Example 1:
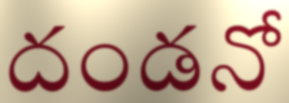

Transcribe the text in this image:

దండనో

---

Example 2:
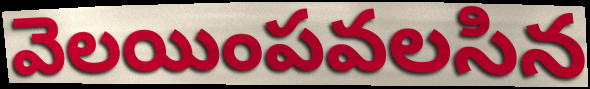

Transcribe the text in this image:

వెలయింపవలసిన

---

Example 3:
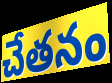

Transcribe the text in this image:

చేతనం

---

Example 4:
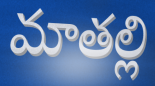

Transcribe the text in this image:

మాతల్లి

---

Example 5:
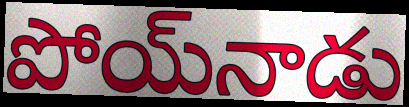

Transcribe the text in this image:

పోయ్‌నాడు